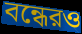
বন্ধেরও